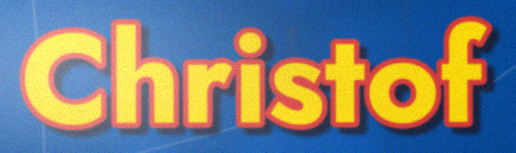
Christof